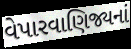
વેપારવાણિજ્યનાં